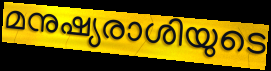
മനുഷ്യരാശിയുടെ